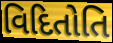
વિદિતોતિ